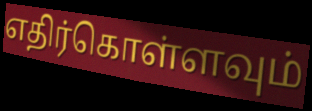
எதிர்கொள்ளவும்